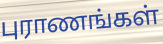
புராணங்கள்